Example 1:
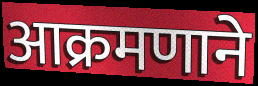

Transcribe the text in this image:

आक्रमणाने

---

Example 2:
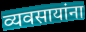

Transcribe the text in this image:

व्यवसायांना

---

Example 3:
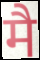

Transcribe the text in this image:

मै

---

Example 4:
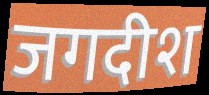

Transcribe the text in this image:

जगदीश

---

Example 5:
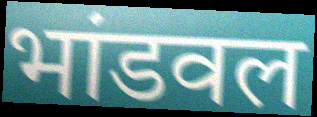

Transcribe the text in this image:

भांडवल